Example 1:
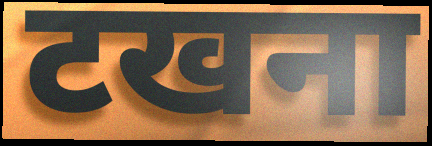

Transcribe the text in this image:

टखना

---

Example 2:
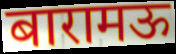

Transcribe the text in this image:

बारामऊ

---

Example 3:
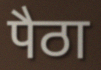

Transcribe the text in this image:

पैठा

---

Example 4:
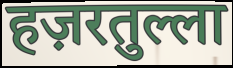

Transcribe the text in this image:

हज़रतुल्ला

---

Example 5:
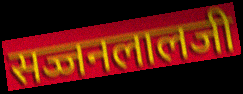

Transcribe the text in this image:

सज्जनलालजी